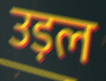
उड़ल